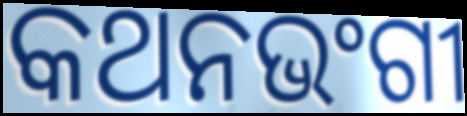
କଥନଭଂଗୀ